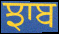
ਝਾਬ